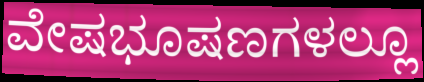
ವೇಷಭೂಷಣಗಳಲ್ಲೂ